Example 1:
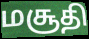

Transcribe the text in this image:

மசூதி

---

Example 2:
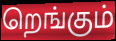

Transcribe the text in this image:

றெங்கும்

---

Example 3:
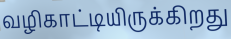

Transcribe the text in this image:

வழிகாட்டியிருக்கிறது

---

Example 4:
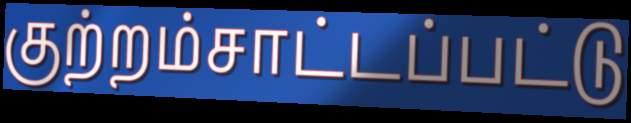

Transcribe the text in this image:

குற்றம்சாட்டப்பட்டு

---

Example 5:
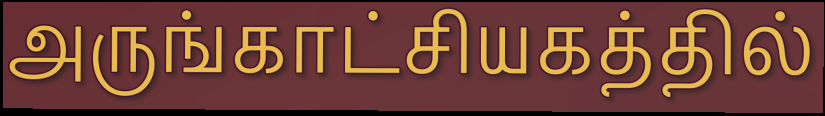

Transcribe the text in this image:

அருங்காட்சியகத்தில்